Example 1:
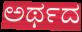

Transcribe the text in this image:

ಅರ್ಥದ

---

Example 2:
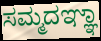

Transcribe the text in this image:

ಸಮ್ಮದಞ್ಞಾ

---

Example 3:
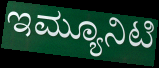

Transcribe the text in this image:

ಇಮ್ಯೂನಿಟಿ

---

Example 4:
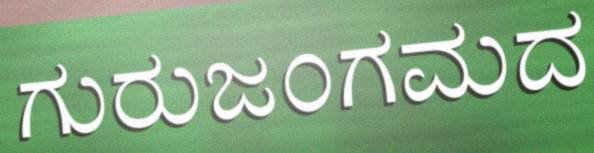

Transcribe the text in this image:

ಗುರುಜಂಗಮದ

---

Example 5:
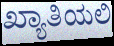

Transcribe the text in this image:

ಖ್ಯಾತಿಯಲಿ